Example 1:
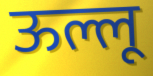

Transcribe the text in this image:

ऊल्लू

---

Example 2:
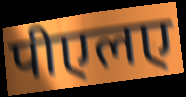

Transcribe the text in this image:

पीएलए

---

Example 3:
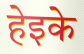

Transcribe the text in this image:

हेइके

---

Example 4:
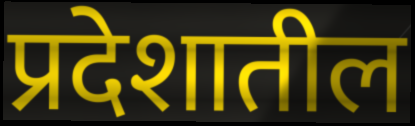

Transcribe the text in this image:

प्रदेशातील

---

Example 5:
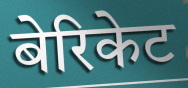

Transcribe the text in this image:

बेरिकेट